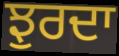
ਝੁਰਦਾ